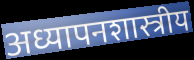
अध्यापनशास्त्रीय